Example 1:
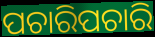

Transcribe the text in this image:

ପଚାରିପଚାରି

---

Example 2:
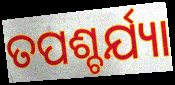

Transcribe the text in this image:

ତପଶ୍ଚର୍ଯ୍ୟା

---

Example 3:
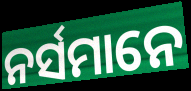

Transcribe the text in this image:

ନର୍ସମାନେ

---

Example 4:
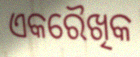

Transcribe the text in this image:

ଏକରୈଖିକ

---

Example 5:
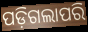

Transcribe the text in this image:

ପଡ଼ିଗଲାପରି